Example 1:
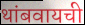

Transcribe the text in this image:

थांबवायची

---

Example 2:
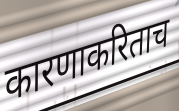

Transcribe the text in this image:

कारणाकरिताच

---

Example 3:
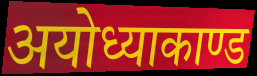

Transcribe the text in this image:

अयोध्याकाण्ड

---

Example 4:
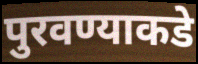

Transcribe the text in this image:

पुरवण्याकडे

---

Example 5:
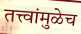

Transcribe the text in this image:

तत्त्वांमुळेच